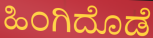
ಹಿಂಗಿದೊಡೆ